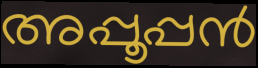
അപ്പൂപ്പൻ